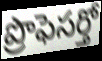
ప్రొఫెసర్తో